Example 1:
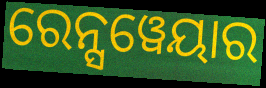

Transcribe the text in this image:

ରେନ୍ସୱେୟାର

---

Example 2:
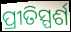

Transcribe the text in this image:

ପ୍ରୀତିସ୍ପର୍ଶ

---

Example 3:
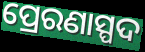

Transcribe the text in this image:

ପ୍ରେରଣାସ୍ପଦ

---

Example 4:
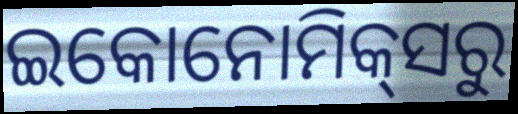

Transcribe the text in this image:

ଇକୋନୋମିକ୍‌ସରୁ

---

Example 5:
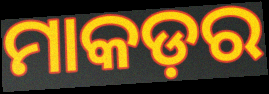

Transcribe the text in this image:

ମାକଡ଼ର